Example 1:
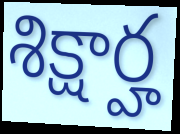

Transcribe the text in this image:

శిక్షార్హ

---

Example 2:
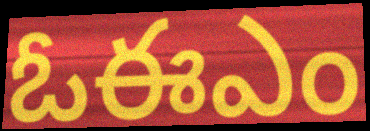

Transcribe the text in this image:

ఓఈఎం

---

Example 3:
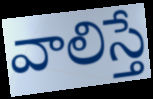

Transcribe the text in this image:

వాలిస్తే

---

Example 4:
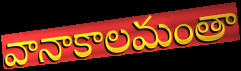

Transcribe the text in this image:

వానాకాలమంతా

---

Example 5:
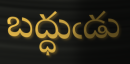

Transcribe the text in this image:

బద్ధుఁడు